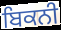
ਬਿਕਨੀ